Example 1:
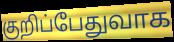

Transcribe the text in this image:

குறிப்பேதுவாக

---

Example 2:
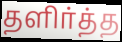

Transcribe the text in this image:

தளிர்த்த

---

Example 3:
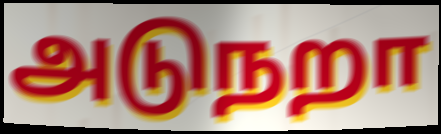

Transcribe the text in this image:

அடுநறா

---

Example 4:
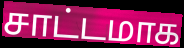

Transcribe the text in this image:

சாட்டமாக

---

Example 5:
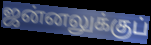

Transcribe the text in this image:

ஜன்னலுக்குப்